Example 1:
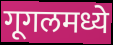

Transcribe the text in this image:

गूगलमध्ये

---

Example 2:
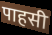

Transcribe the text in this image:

पाहसी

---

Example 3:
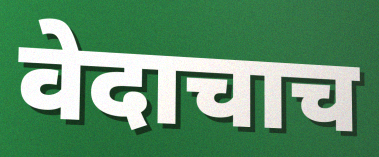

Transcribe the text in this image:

वेदाचाच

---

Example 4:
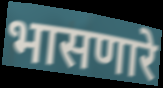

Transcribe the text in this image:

भासणारे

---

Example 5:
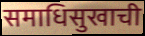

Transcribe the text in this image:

समाधिसुखाची